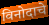
विनोदाचे